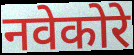
नवेकोरे